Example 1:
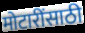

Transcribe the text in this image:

मोटारींसाठी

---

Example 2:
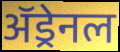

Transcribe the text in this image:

ॲड्रेनल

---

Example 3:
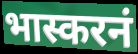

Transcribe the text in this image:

भास्करनं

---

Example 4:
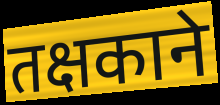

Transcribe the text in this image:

तक्षकाने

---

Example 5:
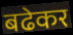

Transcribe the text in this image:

बढेकर